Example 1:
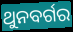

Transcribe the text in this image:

ଥୁନବର୍ଗର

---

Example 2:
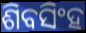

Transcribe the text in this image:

ଶିବସିଂହ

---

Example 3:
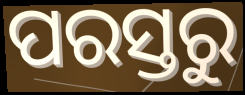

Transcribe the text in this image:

ପରସ୍ତରୁ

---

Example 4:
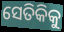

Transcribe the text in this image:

ସେତିକିକୁ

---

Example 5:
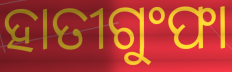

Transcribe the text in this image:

ହାତୀଗୁଂଫା